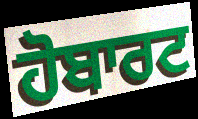
ਹੋਬਾਰਟ